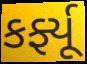
કર્ફ્યૂ